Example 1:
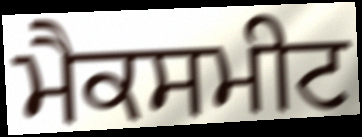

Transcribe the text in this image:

ਮੈਕਸਮੀਟ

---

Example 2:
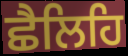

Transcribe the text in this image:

ਛੈਲਿਹਿ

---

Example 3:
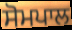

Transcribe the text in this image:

ਸੋਮਪਾਲ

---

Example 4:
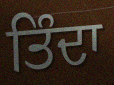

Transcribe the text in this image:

ਤਿੰਦਾ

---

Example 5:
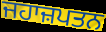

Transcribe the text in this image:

ਜਹਾਜ਼ਪਤਨ